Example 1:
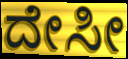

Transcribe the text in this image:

ದೇಸೀ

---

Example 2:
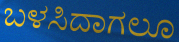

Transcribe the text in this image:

ಬಳಸಿದಾಗಲೂ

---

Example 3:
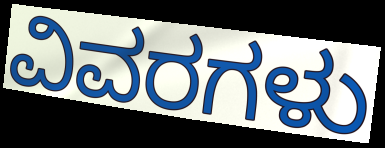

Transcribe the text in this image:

ವಿವರಗಳು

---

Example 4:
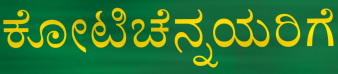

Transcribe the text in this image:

ಕೋಟಿಚೆನ್ನಯರಿಗೆ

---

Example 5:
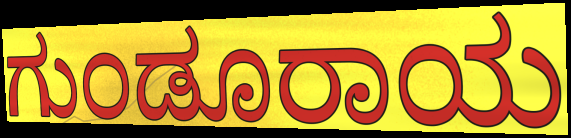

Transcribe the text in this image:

ಗುಂಡೂರಾಯ